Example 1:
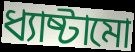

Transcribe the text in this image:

ধ্যাষ্টামো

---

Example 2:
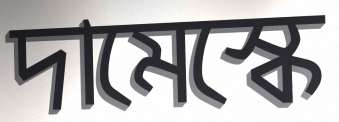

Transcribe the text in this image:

দামেস্কে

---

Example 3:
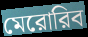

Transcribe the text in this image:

মেরোরিব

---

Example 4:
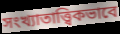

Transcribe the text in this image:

সংখ্যাতাত্ত্বিকভাবে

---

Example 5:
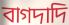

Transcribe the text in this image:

বাগদাদি